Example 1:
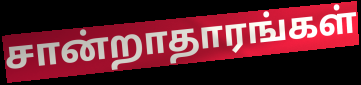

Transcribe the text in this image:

சான்றாதாரங்கள்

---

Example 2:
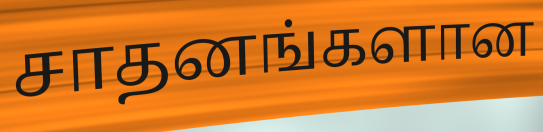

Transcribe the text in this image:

சாதனங்களான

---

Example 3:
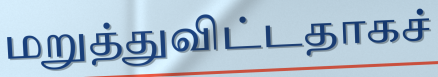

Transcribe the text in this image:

மறுத்துவிட்டதாகச்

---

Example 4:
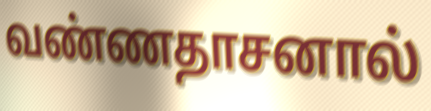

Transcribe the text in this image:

வண்ணதாசனால்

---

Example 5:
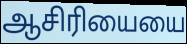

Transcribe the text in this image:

ஆசிரியையை